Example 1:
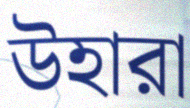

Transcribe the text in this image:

উহারা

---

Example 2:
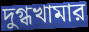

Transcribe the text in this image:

দুগ্ধখামার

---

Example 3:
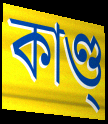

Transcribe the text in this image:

কাণ্ড্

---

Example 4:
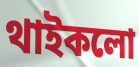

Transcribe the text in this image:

থাইকলো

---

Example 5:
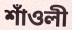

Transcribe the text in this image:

শাঁওলী